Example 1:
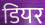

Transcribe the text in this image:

डियर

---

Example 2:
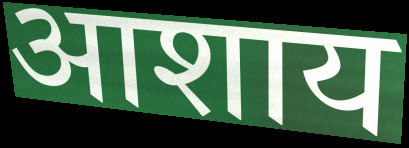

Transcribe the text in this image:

आशाय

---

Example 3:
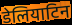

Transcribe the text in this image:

डेलियाटिन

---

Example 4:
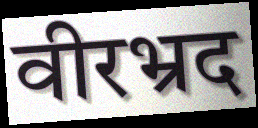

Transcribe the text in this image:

वीरभ्रद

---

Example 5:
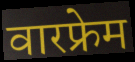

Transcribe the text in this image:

वारफ्रेम